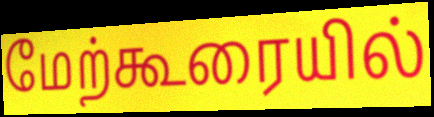
மேற்கூரையில்